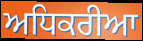
ਅਧਿਕਰੀਆ